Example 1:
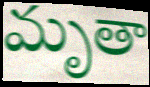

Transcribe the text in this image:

మృతా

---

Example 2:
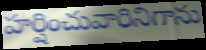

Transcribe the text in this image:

హర్షించువారినిగాను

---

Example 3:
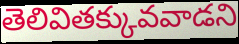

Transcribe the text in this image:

తెలివితక్కువవాడని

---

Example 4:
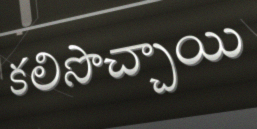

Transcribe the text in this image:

కలిసొచ్చాయి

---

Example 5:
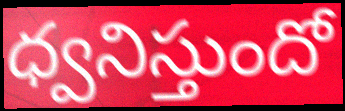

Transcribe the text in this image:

ధ్వనిస్తుందో